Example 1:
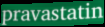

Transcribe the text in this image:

pravastatin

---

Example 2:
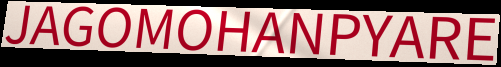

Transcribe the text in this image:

JAGOMOHANPYARE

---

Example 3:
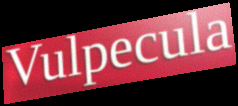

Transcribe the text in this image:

Vulpecula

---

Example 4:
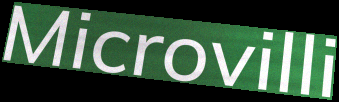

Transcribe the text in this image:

Microvilli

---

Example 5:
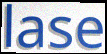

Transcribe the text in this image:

lase